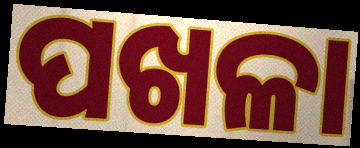
ପଖଳା